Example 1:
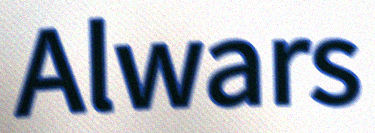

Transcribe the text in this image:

Alwars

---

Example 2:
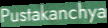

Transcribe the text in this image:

Pustakanchya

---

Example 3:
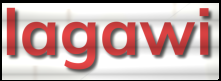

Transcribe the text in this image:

lagawi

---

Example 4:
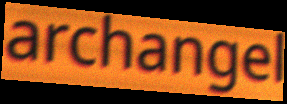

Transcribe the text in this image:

archangel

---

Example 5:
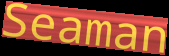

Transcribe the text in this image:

Seaman